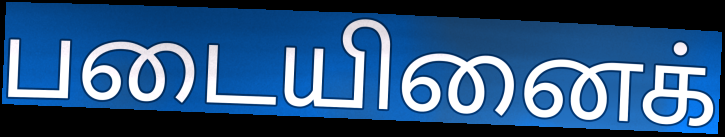
படையினைக்